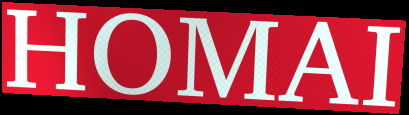
HOMAI